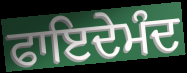
ਫਾਇਦੇਮੰਦ